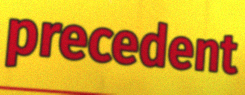
precedent